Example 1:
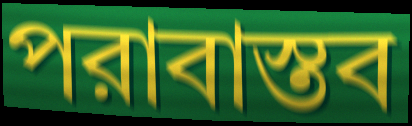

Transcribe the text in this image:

পরাবাস্তব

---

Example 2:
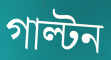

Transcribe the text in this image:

গাল্টন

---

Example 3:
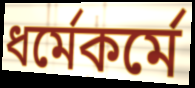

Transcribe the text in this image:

ধর্মেকর্মে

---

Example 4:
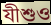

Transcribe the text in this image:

যীশুও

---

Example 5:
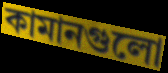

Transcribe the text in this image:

কামানগুলো